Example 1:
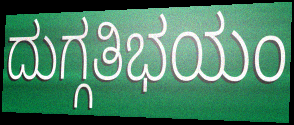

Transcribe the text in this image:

ದುಗ್ಗತಿಭಯಂ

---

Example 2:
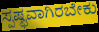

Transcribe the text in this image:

ಸ್ಪಷ್ಟವಾಗಿರಬೇಕು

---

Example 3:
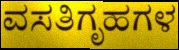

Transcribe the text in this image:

ವಸತಿಗೃಹಗಳ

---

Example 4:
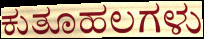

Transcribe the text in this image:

ಕುತೂಹಲಗಳು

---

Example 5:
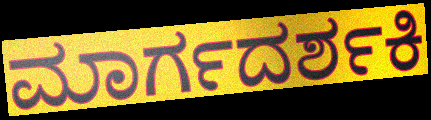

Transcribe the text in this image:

ಮಾರ್ಗದರ್ಶಕಿ